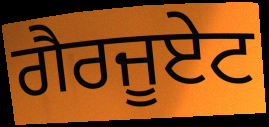
ਗੈਰਜੂਏਟ